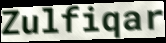
Zulfiqar